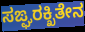
ಸಙ್ಘರಕ್ಖಿತೇನ